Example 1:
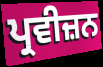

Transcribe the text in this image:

ਪ੍ਰਵੀਜ਼ਨ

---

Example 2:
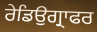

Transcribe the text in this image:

ਰੇਡਿਉਗ੍ਰਾਫਰ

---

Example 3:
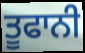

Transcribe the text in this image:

ਤੂਫਾਨੀ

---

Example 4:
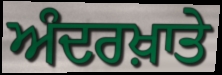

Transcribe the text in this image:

ਅੰਦਰਖ਼ਾਤੇ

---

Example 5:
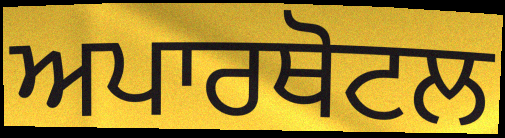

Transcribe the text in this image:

ਅਪਾਰਥੋਟਲ